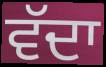
ਵੱਦਾ